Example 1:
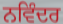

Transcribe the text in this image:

ਨਵਿੰਦਰ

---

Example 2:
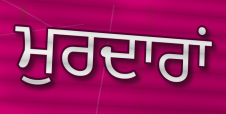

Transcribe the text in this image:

ਮੁਰਦਾਰਾਂ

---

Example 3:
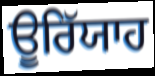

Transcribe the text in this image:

ਊਰਿੱਯਾਹ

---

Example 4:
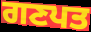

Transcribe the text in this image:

ਗਣਪਤ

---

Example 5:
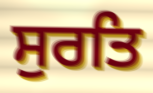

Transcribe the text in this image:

ਸੁਰਤਿ